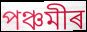
পঞ্চমীৰ